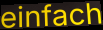
einfach